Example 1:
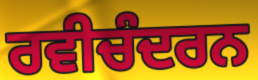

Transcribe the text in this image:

ਰਵੀਚੰਦਰਨ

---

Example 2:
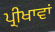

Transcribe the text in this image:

ਪ੍ਰੀਖਾਵਾਂ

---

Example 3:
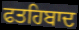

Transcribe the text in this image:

ਫਤਹਿਬਾਦ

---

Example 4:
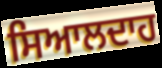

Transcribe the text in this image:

ਸਿਆਲਦਾਹ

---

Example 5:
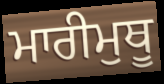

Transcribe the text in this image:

ਮਾਰੀਮੁਥੂ